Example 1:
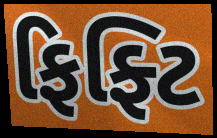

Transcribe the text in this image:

ફિફ્ટિ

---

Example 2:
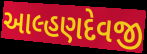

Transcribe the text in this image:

આલ્હણદેવજી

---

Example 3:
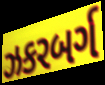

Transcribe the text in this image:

ઝકરબર્ગ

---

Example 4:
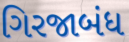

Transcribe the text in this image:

ગિરજાબંધ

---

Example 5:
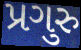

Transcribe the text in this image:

પ્રગુરુ